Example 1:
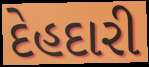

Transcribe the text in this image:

દેહદારી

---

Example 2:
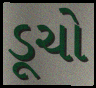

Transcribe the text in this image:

ડૂચો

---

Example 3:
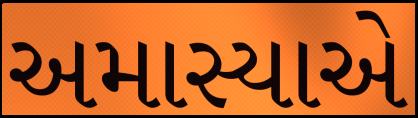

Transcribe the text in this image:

અમાસ્યાએ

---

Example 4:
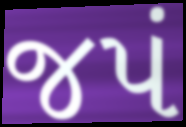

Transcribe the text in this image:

જપં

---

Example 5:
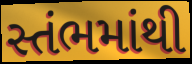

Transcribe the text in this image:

સ્તંભમાંથી